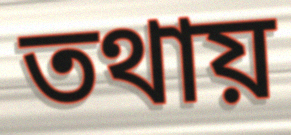
তথায়